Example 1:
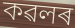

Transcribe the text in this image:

কৱলৰ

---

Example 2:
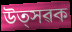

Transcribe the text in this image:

উত্সৱক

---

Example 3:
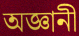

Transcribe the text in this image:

অজ্ঞানী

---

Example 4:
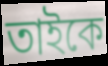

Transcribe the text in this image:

তাইকে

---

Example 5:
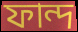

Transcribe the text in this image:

ফান্দ